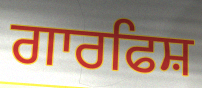
ਗਾਰਫਿਸ਼